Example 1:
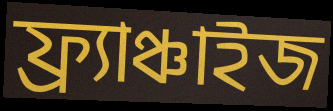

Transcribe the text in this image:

ফ্র্যাঞ্চাইজ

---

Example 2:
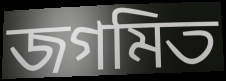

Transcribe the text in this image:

জগমিত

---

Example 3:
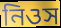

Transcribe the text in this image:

নিওস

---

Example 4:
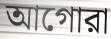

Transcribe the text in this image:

আগোরা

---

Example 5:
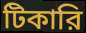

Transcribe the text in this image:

টিকারি